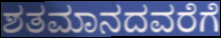
ಶತಮಾನದವರೆಗೆ